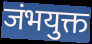
जंभयुक्त